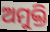
ଅମୁକ୍ତି